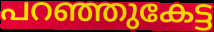
പറഞ്ഞുകേട്ട